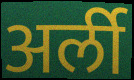
अर्ली